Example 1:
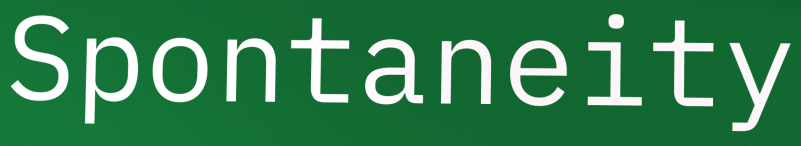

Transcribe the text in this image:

Spontaneity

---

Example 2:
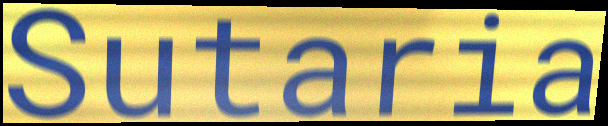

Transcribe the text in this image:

Sutaria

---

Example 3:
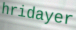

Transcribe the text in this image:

hridayer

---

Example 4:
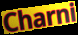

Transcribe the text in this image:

Charni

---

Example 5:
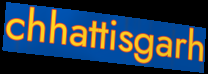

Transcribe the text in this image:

chhattisgarh